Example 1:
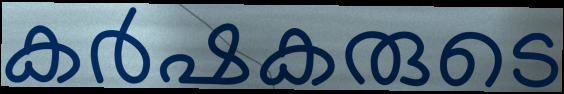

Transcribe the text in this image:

കർഷകരുടെ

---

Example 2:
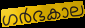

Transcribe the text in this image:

ഗർഭകാല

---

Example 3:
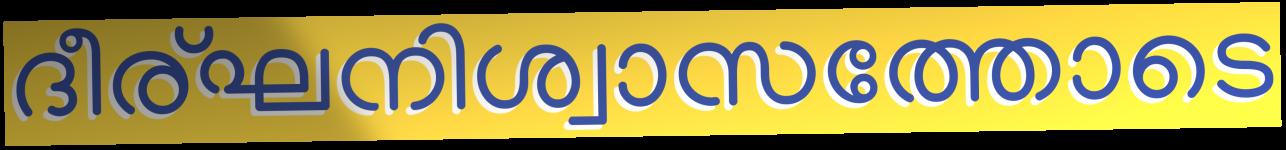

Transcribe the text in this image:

ദീര്ഘനിശ്വാസത്തോടെ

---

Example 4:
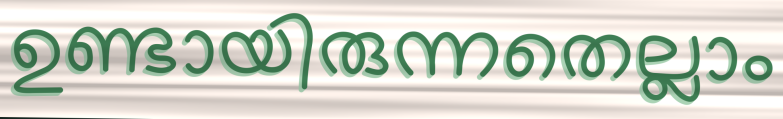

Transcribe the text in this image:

ഉണ്ടായിരുന്നതെല്ലാം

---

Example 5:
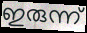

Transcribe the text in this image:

ഇരുന്ന്